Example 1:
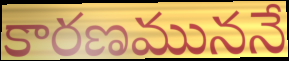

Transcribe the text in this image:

కారణముననే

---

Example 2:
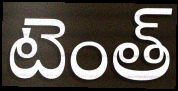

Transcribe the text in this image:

టెంత్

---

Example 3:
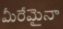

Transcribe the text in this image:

మీరేమైనా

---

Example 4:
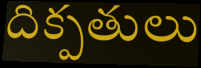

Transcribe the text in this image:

దిక్పతులు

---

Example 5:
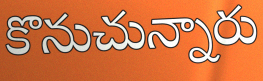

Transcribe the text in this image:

కొనుచున్నారు